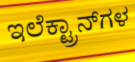
ಇಲೆಕ್ಟ್ರಾನ್‍ಗಳ